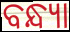
ବନ୍ଧ୍ୟା